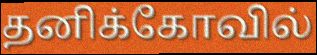
தனிக்கோவில்